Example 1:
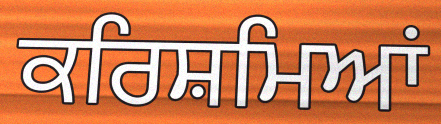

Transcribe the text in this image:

ਕਰਿਸ਼ਮਿਆਂ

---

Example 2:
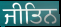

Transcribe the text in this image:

ਜੀਤਿਨ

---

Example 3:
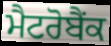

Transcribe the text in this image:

ਮੈਟਰੋਬੈਂਕ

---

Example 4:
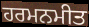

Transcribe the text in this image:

ਹਰਮਨਮੀਤ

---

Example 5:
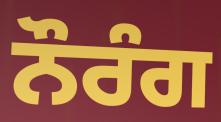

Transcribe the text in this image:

ਨੌਰੰਗ